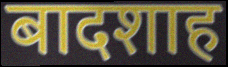
बादशाह